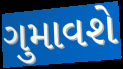
ગુમાવશે